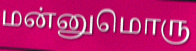
மன்னுமொரு